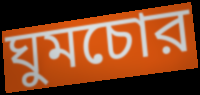
ঘুমচোর